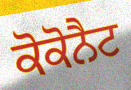
ਕੋਕੋਨੈਟ